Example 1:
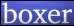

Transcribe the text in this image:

boxer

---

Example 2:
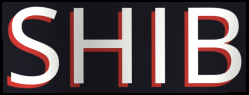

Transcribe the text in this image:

SHIB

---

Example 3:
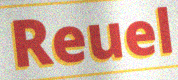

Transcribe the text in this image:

Reuel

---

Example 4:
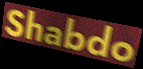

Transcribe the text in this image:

Shabdo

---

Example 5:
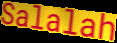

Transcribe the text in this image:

Salalah